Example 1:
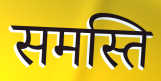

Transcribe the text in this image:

समस्ति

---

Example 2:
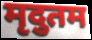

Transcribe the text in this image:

मृदुतम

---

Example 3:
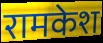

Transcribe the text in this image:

रामकेश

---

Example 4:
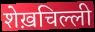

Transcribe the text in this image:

शेख़चिल्ली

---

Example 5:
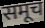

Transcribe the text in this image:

समूच